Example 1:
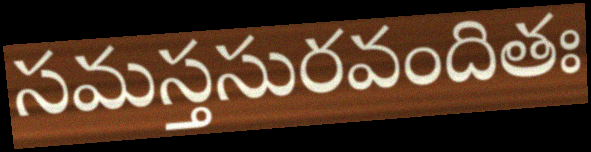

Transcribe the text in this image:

సమస్తసురవందితః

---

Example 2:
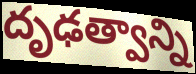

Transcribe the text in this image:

దృఢత్వాన్ని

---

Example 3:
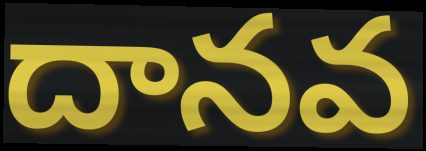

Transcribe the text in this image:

దానవ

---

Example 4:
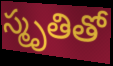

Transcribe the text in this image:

స్మృతితో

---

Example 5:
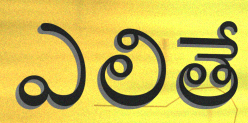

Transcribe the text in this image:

ఎలితే